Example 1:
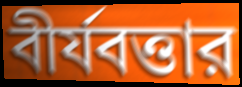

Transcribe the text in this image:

বীর্যবত্তার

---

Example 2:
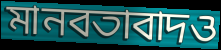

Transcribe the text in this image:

মানবতাবাদও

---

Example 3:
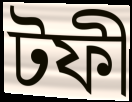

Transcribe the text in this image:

টফী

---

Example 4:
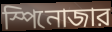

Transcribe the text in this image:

স্পিনোজার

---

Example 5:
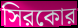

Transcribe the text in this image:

সিরকোর